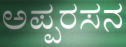
ಅಪ್ಪರಸನ